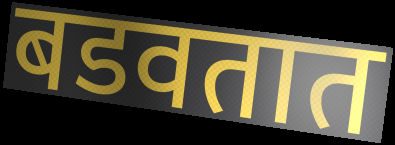
बडवतात